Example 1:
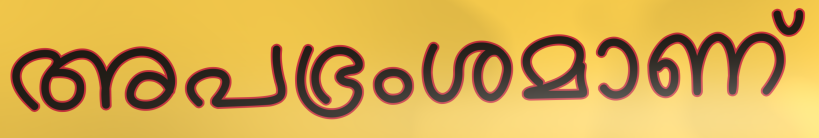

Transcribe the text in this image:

അപഭ്രംശമാണ്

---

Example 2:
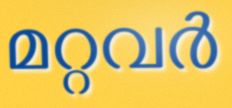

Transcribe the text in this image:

മറ്റവർ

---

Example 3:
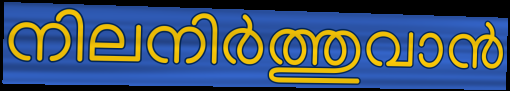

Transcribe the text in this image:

നിലനിർത്തുവാൻ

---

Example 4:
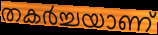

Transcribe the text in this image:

തകർച്ചയാണ്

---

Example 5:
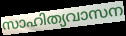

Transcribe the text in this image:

സാഹിത്യവാസന